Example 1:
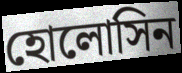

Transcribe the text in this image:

হোলোসিন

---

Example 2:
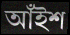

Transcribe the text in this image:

আঁইশ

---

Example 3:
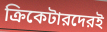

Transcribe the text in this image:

ক্রিকেটারদেরই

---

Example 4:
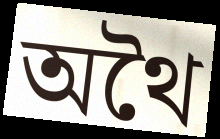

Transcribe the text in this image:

অথৈ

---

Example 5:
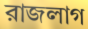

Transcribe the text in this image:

রাজলাগ